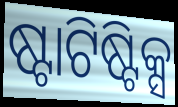
ଷ୍ଟାଟିଷ୍ଟିକ୍ସ